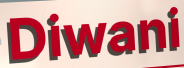
Diwani